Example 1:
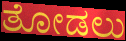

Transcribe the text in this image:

ತೋಡಲು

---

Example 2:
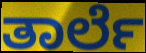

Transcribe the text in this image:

ತಾರ್ಲೆ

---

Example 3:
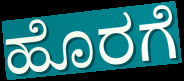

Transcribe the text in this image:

ಹೊರಗೆ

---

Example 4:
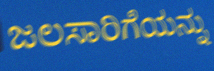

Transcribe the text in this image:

ಜಲಸಾರಿಗೆಯನ್ನು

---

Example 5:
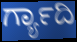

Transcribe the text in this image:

ರ್ಗ್ಯಾದಿ